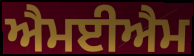
ਐਮਈਐਮ